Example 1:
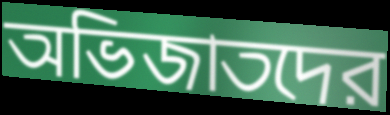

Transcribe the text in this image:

অভিজাতদের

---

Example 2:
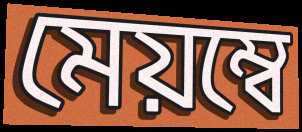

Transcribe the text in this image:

মেয়ম্বে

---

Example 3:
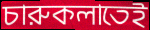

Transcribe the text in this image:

চারুকলাতেই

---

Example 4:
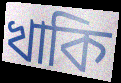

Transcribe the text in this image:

খাকি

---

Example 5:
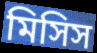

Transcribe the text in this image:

মিসিস